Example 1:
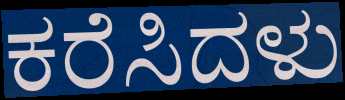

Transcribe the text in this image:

ಕರೆಸಿದಳು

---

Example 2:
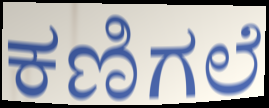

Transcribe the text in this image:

ಕಣಿಗಲೆ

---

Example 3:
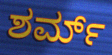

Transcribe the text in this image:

ಶರ್ಮ್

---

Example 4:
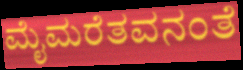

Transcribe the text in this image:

ಮೈಮರೆತವನಂತೆ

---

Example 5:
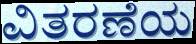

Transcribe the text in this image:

ವಿತರಣೆಯ